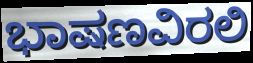
ಭಾಷಣವಿರಲಿ